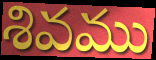
శివము